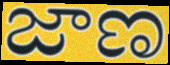
జాణ